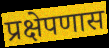
प्रक्षेपणास